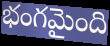
భంగమైంది